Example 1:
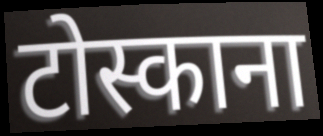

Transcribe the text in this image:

टोस्काना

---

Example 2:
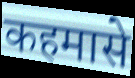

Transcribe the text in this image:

कहमासे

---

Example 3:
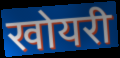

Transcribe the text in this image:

खोयरी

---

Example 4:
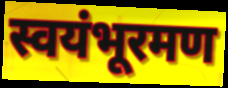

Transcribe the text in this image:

स्वयंभूरमण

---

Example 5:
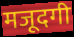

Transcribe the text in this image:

मजूदगी